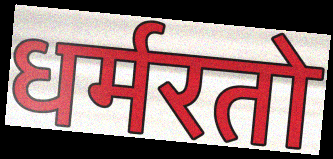
धर्मरतो